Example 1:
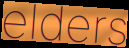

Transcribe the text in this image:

elders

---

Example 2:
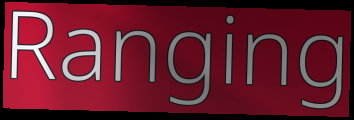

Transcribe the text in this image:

Ranging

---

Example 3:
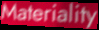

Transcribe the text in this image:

Materiality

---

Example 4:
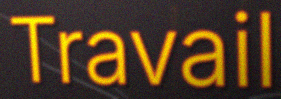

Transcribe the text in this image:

Travail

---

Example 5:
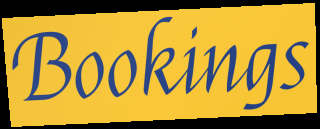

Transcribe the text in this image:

Bookings